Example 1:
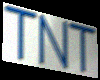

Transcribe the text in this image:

TNT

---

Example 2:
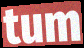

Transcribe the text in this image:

tum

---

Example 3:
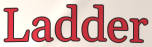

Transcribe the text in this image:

Ladder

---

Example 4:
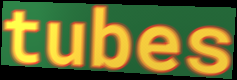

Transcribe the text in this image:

tubes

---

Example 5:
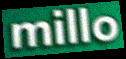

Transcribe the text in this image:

millo